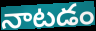
నాటడం